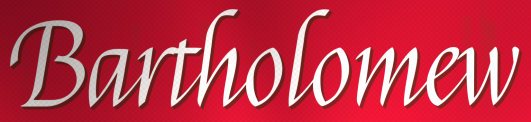
Bartholomew